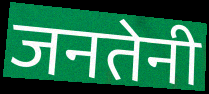
जनतेनी